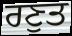
ਰਣੁਤ